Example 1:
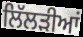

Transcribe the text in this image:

ਲਿੱਲੜੀਆਂ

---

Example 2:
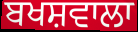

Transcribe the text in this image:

ਬਖਸ਼ਵਾਲਾ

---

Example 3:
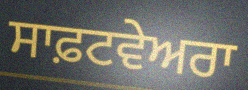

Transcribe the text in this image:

ਸਾਫ਼ਟਵੇਅਰਾ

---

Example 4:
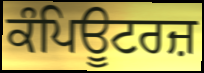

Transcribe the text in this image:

ਕੰਪਿਊਟਰਜ਼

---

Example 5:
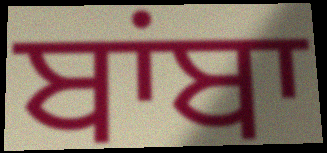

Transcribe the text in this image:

ਬਾਂਬਾ